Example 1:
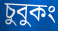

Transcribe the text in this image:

চুবুকং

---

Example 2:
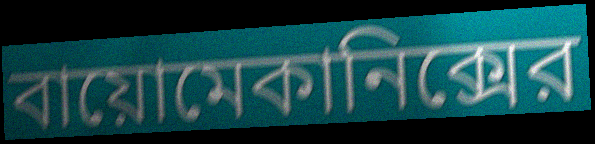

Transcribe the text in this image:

বায়োমেকানিক্সের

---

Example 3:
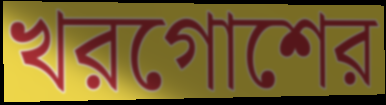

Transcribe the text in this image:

খরগোশের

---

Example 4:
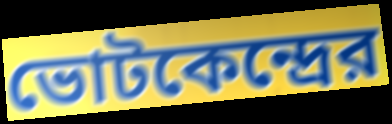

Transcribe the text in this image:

ভোটকেন্দ্রের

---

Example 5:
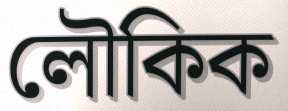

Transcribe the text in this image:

লৌকিক